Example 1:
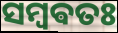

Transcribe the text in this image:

ସମ୍ବଵତଃ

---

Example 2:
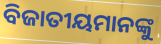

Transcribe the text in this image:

ବିଜାତୀୟମାନଙ୍କୁ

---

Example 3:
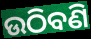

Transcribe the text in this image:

ଉଠିବଣି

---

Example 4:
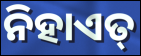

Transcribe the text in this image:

ନିହାଏତ୍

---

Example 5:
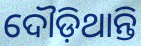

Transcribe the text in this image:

ଦୌଡ଼ିଥାନ୍ତି